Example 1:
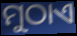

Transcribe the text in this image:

ମୁଠାଏ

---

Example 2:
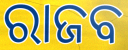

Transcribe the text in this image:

ରାଜବ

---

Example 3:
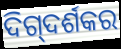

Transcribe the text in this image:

ଦିଗ୍‍ଦର୍ଶକର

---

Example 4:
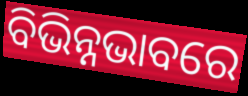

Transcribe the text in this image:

ବିଭିନ୍ନଭାବରେ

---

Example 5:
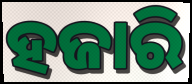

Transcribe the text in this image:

ହଜାରି